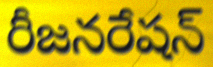
రీజనరేషన్